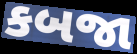
કબજા